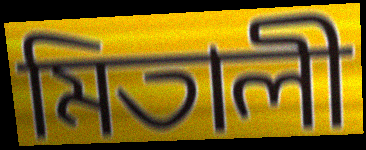
মিতালী